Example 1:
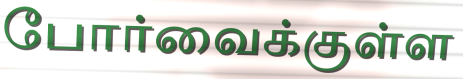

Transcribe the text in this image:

போர்வைக்குள்ள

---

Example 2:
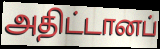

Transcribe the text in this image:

அதிட்டானப்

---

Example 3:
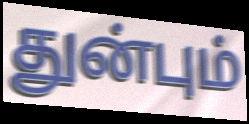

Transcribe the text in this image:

துன்பும்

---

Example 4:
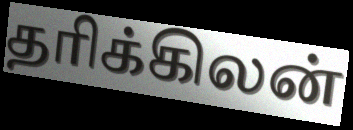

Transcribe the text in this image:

தரிக்கிலன்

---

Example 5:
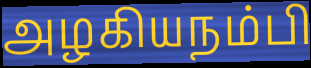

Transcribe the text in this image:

அழகியநம்பி